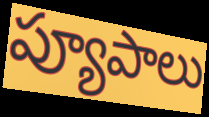
ప్యూపాలు